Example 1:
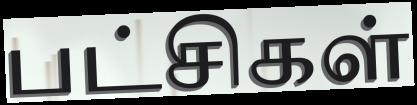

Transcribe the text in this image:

பட்சிகள்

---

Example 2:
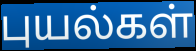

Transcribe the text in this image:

புயல்கள்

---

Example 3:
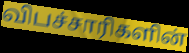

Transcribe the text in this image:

விபச்சாரிகளின்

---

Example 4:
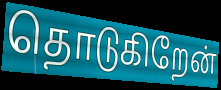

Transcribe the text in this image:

தொடுகிறேன்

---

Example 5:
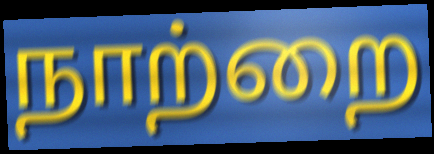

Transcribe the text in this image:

நாற்றை